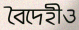
বৈদেহীও